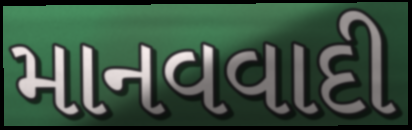
માનવવાદી